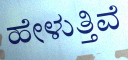
ಹೇಳುತ್ತಿವೆ